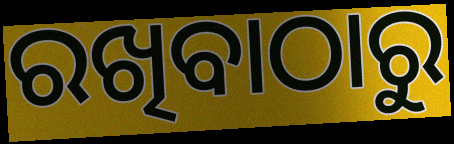
ରଖିବାଠାରୁ